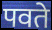
पवते